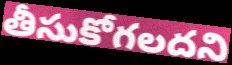
తీసుకోగలదని